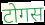
टोगस